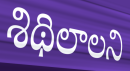
శిథిలాలని